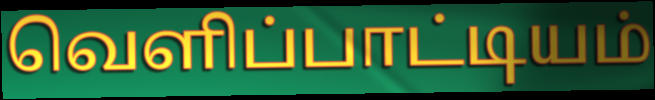
வெளிப்பாட்டியம்